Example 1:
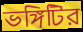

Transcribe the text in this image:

ভঙ্গিটির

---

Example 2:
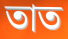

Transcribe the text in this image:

তাত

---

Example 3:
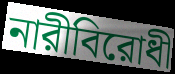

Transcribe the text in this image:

নারীবিরোধী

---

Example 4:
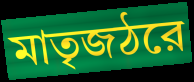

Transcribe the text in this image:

মাতৃজঠরে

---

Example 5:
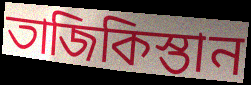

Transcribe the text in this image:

তাজিকিস্তান